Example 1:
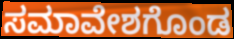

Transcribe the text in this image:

ಸಮಾವೇಶಗೊಂಡ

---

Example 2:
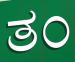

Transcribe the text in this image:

ತಂ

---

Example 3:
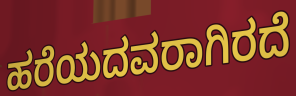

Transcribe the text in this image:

ಹರೆಯದವರಾಗಿರದೆ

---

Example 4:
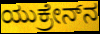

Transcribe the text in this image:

ಯುಕ್ರೇನ್‌ನ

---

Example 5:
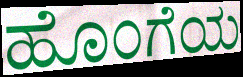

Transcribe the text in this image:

ಹೊಂಗೆಯ